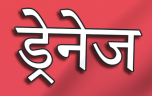
ड्रेनेज